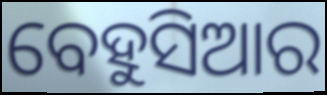
ବେହୁସିଆର